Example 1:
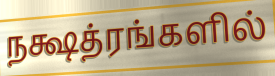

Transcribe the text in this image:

நக்ஷத்ரங்களில்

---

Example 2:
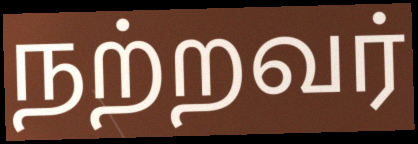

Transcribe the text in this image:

நற்றவர்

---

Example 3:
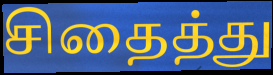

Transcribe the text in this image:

சிதைத்து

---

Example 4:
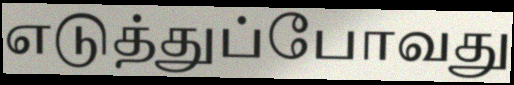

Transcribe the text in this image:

எடுத்துப்போவது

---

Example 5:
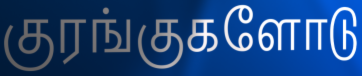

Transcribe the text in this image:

குரங்குகளோடு